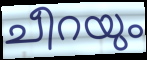
ചീറയും